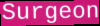
Surgeon